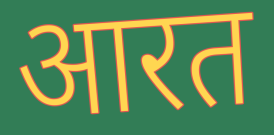
आरत